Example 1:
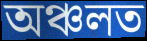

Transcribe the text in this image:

অঞ্চলত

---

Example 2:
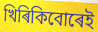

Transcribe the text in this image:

খিৰিকিবোৰেই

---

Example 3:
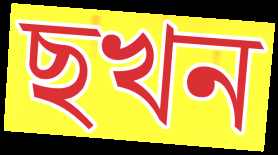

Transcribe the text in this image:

ছখন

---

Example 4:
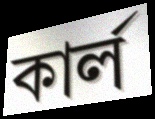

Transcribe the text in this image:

কাৰ্ল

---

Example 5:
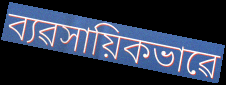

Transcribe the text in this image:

ব্যৱসায়িকভাৱে